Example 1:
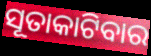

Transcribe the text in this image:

ସୂତାକାଟିବାର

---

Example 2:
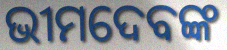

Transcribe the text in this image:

ଭୀମଦେବଙ୍କ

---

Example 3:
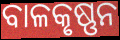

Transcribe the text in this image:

ବାଳକୃଷ୍ଣନ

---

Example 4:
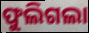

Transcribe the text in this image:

ଫୁଲିଗଲା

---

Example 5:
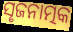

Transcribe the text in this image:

ସୃଜନାତ୍ମକ